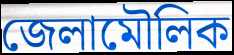
জেলামৌলিক